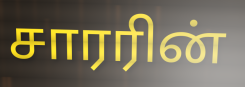
சாரரின்